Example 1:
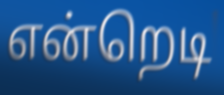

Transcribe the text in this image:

என்றெடி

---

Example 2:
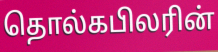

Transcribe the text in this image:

தொல்கபிலரின்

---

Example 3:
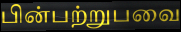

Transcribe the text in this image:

பின்பற்றுபவை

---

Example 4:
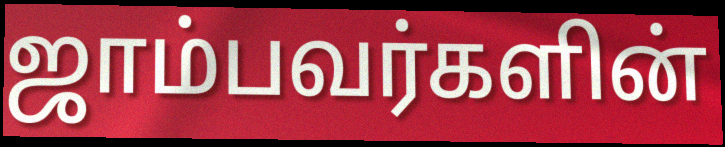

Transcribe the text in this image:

ஜாம்பவர்களின்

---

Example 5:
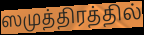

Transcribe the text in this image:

ஸமுத்திரத்தில்